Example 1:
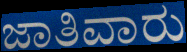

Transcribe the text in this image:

ಜಾತಿವಾರು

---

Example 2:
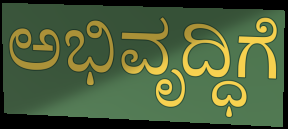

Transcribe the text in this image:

ಅಭಿವೃದ್ಧಿಗೆ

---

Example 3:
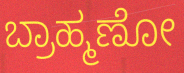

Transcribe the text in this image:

ಬ್ರಾಹ್ಮಣೋ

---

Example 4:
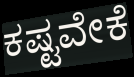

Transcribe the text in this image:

ಕಷ್ಟವೇಕೆ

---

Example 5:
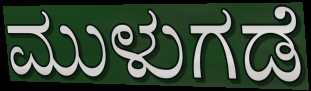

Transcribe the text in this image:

ಮುಳುಗಡೆ